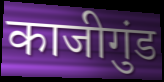
काजीगुंड